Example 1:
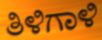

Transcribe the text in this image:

ತಿಳಿಗಾಳಿ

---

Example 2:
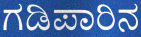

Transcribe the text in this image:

ಗಡಿಪಾರಿನ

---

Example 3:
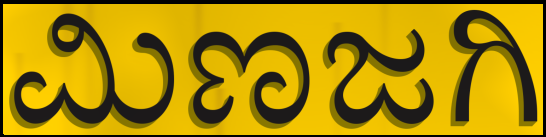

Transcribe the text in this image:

ಮಿಣಜಗಿ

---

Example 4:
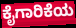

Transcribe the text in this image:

ಕೈಗಾರಿಕೆಯ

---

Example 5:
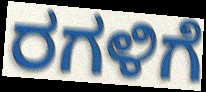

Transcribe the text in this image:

ರಗಳಿಗೆ